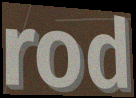
rod